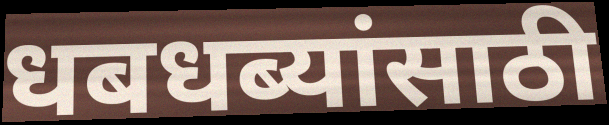
धबधब्यांसाठी